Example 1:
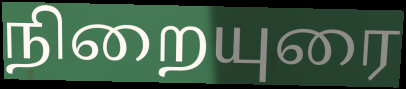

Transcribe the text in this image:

நிறையுரை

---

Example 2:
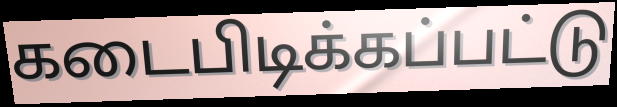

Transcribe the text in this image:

கடைபிடிக்கப்பட்டு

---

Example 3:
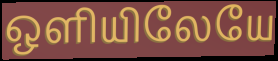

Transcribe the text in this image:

ஒளியிலேயே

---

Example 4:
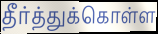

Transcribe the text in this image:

தீர்த்துக்கொள்ள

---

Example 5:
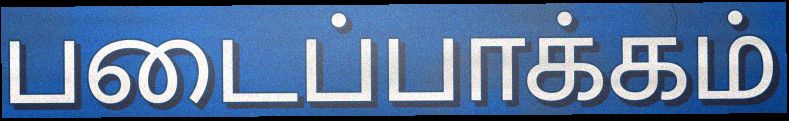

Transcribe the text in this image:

படைப்பாக்கம்